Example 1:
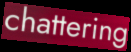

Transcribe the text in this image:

chattering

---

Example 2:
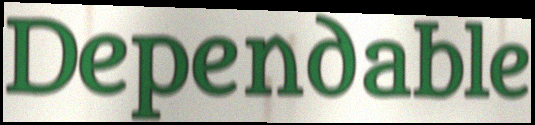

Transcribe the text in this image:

Dependable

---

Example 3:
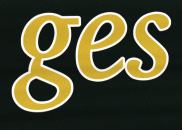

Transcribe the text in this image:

ges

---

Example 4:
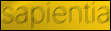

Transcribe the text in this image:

sapientia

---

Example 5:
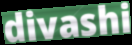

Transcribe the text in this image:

divashi